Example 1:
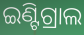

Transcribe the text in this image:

ଇଣ୍ଟିଗ୍ରାଲ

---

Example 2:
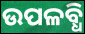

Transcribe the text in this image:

ଉପଳବ୍ଧି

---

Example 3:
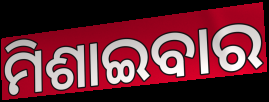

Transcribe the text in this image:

ମିଶାଇବାର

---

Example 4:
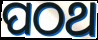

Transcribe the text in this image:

ପଠଥ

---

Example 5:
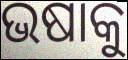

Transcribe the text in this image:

ଭଷାକୁ